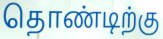
தொண்டிற்கு